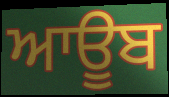
ਆਊਬ